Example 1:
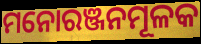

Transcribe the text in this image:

ମନୋରଞ୍ଜନମୂଳକ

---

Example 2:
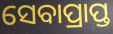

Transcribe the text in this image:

ସେବାପ୍ରାପ୍ତ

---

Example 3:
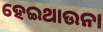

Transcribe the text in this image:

ହେଇଥାଉନା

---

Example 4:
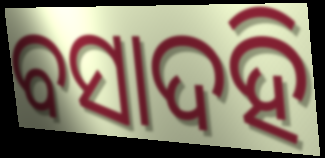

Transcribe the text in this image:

ବସାଦହି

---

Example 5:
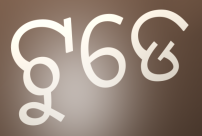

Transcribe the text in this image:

ଟୁଡେ